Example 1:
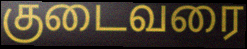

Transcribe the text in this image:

குடைவரை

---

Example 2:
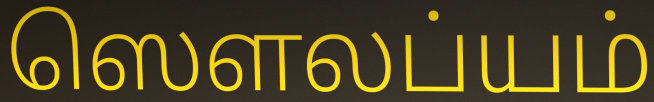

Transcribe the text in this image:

ஸௌலப்யம்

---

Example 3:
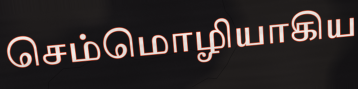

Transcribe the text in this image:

செம்மொழியாகிய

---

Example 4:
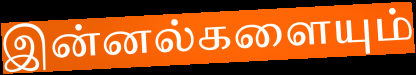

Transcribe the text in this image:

இன்னல்களையும்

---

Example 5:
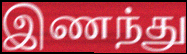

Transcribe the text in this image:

இணந்து